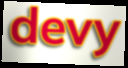
devy